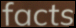
facts